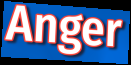
Anger